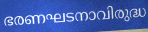
ഭരണഘടനാവിരുദ്ധ